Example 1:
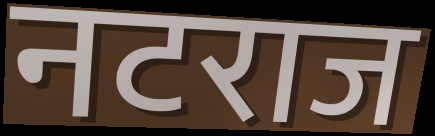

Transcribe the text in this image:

नटराज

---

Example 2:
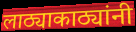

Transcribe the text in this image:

लाठ्याकाठ्यांनी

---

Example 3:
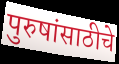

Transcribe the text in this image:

पुरुषांसाठीचे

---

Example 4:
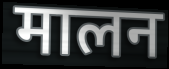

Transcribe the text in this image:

मालन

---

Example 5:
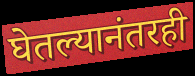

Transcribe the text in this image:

घेतल्यानंतरही